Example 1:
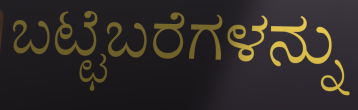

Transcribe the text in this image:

ಬಟ್ಟೆಬರೆಗಳನ್ನು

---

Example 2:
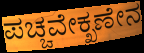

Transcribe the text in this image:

ಪಚ್ಚವೇಕ್ಖಣೇನ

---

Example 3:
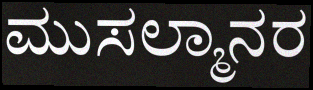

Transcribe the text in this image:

ಮುಸಲ್ಮಾನರ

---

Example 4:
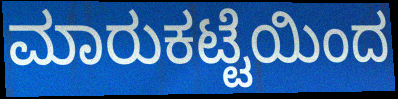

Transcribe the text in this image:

ಮಾರುಕಟ್ಟೆಯಿಂದ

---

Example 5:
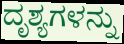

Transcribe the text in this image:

ದೃಶ್ಯಗಳನ್ನು